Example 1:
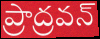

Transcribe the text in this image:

ప్రాద్రవన్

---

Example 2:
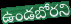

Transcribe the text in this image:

ఉండబోరని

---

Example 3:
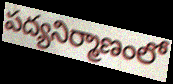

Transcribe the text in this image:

పద్యనిర్మాణంలో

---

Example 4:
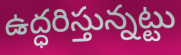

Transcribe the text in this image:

ఉద్ధరిస్తున్నట్టు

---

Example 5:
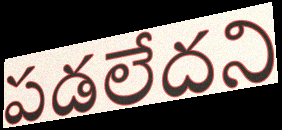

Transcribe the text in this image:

పడలేదని